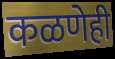
कळणेही